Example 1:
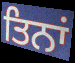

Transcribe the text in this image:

ਤਿਨਾਂ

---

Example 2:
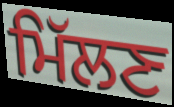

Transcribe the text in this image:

ਮਿੱਲਣ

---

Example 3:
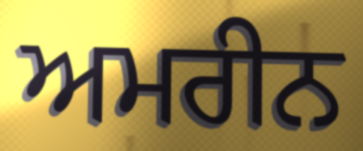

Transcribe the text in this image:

ਅਮਰੀਨ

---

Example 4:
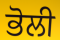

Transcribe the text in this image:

ਭੋਲੀ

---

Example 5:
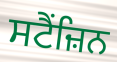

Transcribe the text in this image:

ਸਟੈਂਜ਼ਿਨ